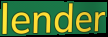
lender